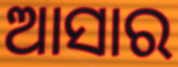
ଆସାର